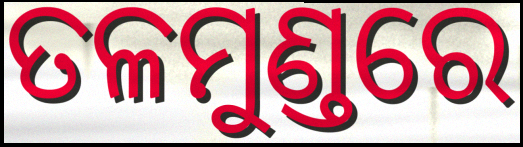
ତଳମୁଣ୍ଡରେ